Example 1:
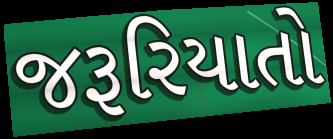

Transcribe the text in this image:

જરૂરિયાતો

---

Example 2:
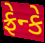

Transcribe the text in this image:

ફ્રેન્કે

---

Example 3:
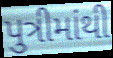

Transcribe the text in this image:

પુત્રીમાંથી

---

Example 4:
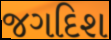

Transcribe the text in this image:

જગદિશ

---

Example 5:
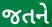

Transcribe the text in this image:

જતને